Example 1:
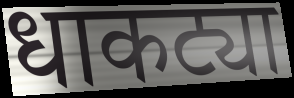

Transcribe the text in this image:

धाकट्या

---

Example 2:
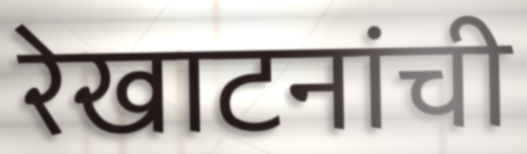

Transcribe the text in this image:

रेखाटनांची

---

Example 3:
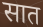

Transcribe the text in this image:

सात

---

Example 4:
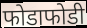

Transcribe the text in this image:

फोडाफोडी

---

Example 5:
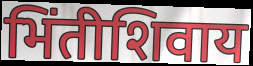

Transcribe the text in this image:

भिंतीशिवाय